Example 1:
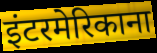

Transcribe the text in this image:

इंटरमेरिकाना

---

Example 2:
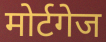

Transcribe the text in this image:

मोर्टगेज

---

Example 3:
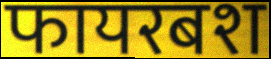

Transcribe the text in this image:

फायरबश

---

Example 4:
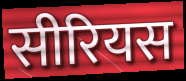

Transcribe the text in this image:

सीरियस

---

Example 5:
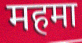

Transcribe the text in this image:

महमा